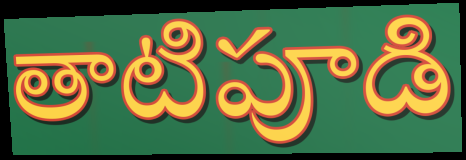
తాటిపూడి